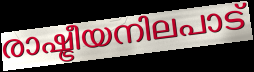
രാഷ്ട്രീയനിലപാട്